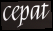
cepat